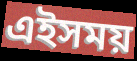
এইসময়